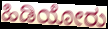
ಹಿಡಿಯೋರು